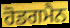
ਹੋਡਗਮੈਨ